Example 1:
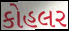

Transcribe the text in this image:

કોહલર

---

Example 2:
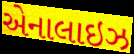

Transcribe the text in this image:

એનાલાઇઝ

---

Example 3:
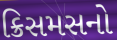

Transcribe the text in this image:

ક્રિસમસનો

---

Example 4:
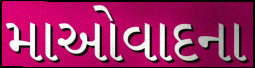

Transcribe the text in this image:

માઓવાદના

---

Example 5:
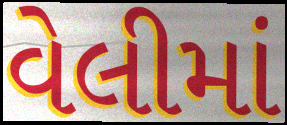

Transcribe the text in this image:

વેલીમાં